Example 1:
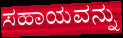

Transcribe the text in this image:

ಸಹಾಯವನ್ನು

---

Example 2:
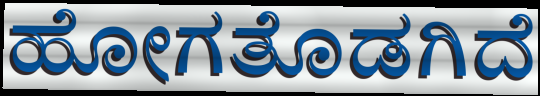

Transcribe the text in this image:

ಹೋಗತೊಡಗಿದೆ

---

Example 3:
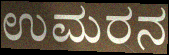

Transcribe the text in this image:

ಉಮರನ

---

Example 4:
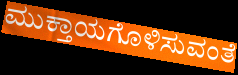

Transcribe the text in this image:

ಮುಕ್ತಾಯಗೊಳಿಸುವಂತೆ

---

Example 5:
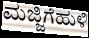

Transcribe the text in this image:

ಮಜ್ಜಿಗೆಹುಳಿ